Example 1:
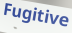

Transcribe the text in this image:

Fugitive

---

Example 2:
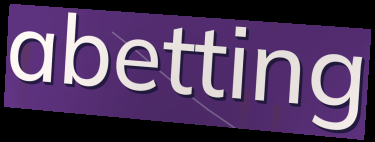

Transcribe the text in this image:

abetting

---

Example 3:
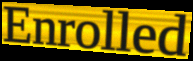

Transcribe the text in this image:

Enrolled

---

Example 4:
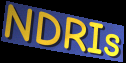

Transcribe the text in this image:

NDRIs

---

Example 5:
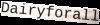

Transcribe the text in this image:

Dairyforall